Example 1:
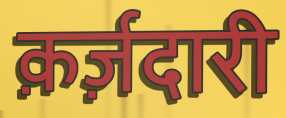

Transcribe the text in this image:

क़र्ज़दारी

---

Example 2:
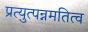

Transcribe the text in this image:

प्रत्युत्पन्नमतित्व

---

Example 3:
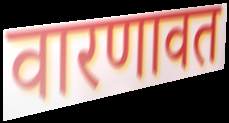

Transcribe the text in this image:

वारणावत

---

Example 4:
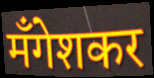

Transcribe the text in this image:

मँगेशकर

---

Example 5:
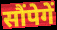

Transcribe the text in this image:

सौंपेगें